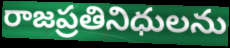
రాజప్రతినిధులను